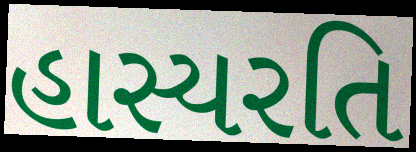
હાસ્યરતિ